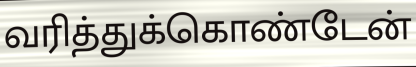
வரித்துக்கொண்டேன்